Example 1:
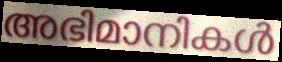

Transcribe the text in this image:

അഭിമാനികൾ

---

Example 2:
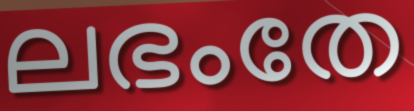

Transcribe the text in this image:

ലഭംതേ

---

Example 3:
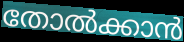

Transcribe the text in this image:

തോൽക്കാൻ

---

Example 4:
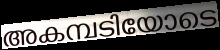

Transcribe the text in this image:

അകമ്പടിയോടെ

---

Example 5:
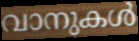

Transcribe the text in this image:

വാനുകൾ